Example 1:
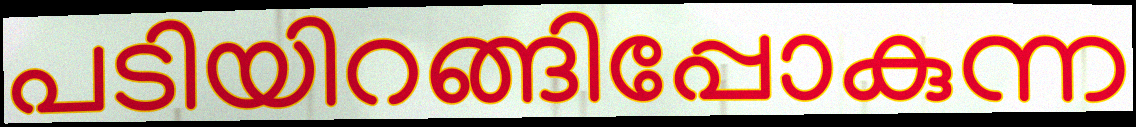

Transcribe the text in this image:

പടിയിറങ്ങിപ്പോകുന്ന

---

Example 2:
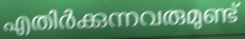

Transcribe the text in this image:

എതിർക്കുന്നവരുമുണ്ട്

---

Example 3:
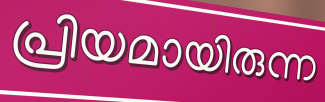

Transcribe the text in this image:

പ്രിയമായിരുന്ന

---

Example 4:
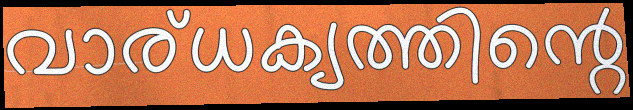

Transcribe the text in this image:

വാര്ധക്യത്തിന്റെ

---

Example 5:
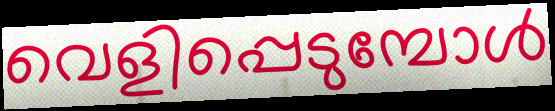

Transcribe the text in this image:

വെളിപ്പെടുമ്പോൾ